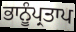
ਭਾਨੂੰਪ੍ਰਤਾਪ